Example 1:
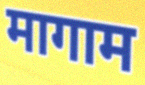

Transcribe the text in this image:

मागाम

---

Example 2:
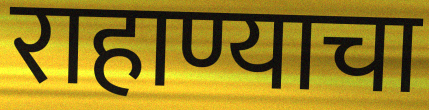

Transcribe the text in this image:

राहाण्याचा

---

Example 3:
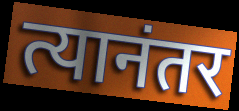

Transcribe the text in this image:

त्यानंतर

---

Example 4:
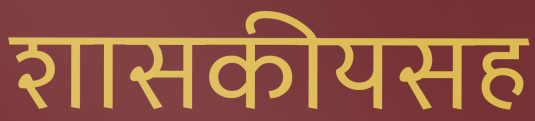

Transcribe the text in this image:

शासकीयसह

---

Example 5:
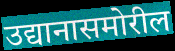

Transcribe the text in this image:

उद्यानासमोरील